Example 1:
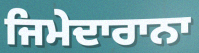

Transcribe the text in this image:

ਜਿਮੇਦਾਰਾਨਾ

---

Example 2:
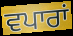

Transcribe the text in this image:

ਵਪਾਰਾਂ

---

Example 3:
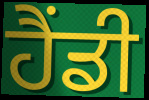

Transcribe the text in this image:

ਹੈਂਡੀ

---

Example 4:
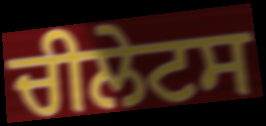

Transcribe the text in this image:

ਚੀਲੇਟਸ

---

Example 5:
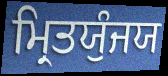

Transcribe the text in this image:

ਮ੍ਰਿਤਯੁੰਜਯ